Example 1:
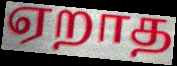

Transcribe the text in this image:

ஏறாத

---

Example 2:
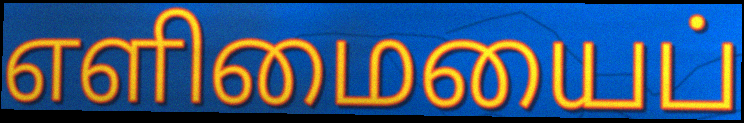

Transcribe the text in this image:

எளிமையைப்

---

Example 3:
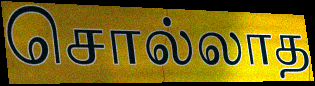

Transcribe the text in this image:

சொல்லாத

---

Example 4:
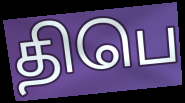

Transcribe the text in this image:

திபெ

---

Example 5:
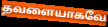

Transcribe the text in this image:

தவளையாகவே